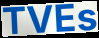
TVEs